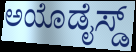
ಅಯೊಡೈಸ್ಡ್